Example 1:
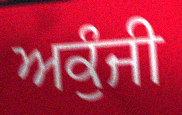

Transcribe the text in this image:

ਅਕੁੰਜੀ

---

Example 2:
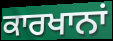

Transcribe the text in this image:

ਕਾਰਖਾਨਾਂ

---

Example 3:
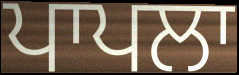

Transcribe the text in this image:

ਪਾਪਲਾ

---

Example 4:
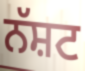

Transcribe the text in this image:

ਨੱਸ਼ਟ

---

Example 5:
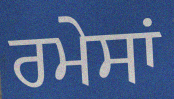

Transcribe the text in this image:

ਰਮੇਸਾਂ